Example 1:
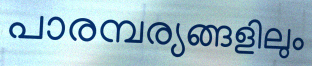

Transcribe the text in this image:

പാരമ്പര്യങ്ങളിലും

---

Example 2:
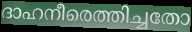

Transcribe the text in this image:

ദാഹനീരെത്തിച്ചതോ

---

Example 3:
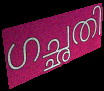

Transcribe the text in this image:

ഗച്ഛതി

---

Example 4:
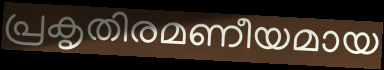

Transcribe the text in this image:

പ്രകൃതിരമണീയമായ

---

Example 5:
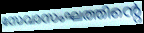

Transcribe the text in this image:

സേവാസംഘത്തിന്റെ